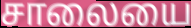
சாலையை